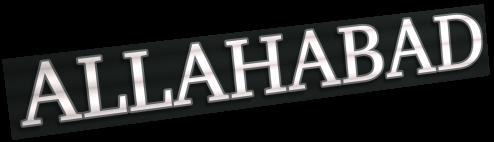
ALLAHABAD